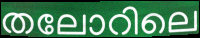
തലോറിലെ